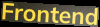
Frontend